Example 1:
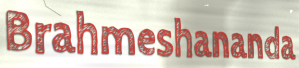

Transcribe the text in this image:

Brahmeshananda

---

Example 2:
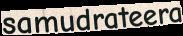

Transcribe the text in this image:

samudrateera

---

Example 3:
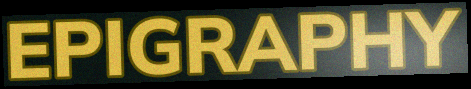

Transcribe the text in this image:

EPIGRAPHY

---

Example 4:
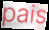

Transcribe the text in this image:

pais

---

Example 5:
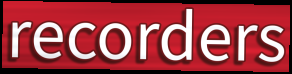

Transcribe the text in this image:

recorders